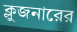
ক্লুজনারের